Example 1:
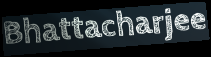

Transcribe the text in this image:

Bhattacharjee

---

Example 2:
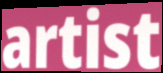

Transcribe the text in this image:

artist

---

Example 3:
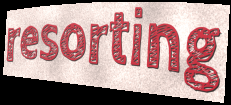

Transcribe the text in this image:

resorting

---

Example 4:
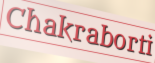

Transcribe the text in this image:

Chakraborti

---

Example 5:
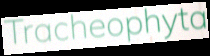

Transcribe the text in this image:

Tracheophyta